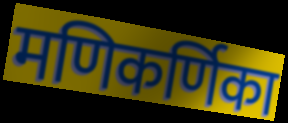
मणिकर्णिका